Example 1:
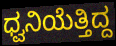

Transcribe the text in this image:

ಧ್ವನಿಯೆತ್ತಿದ್ದ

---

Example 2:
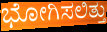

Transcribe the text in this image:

ಭೋಗಿಸಲಿತ್ತು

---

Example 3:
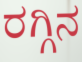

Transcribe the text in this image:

ರಗ್ಗಿನ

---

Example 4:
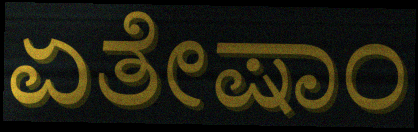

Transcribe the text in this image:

ಏತೇಷಾಂ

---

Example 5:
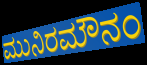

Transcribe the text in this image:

ಮುನಿರಮೌನಂ